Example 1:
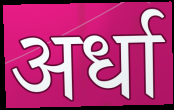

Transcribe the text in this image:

अर्धा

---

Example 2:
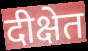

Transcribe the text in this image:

दीक्षेत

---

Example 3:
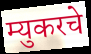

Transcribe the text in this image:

म्युकरचे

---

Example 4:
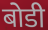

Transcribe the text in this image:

बोडी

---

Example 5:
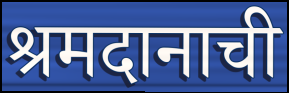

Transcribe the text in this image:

श्रमदानाची